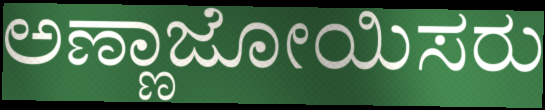
ಅಣ್ಣಾಜೋಯಿಸರು